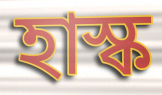
হাস্ক